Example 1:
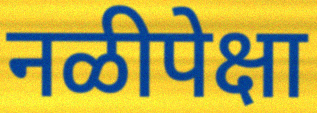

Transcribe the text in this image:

नळीपेक्षा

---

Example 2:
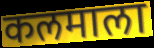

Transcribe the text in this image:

कलमाला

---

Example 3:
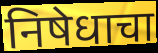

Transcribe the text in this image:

निषेधाचा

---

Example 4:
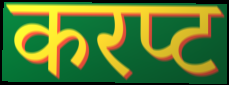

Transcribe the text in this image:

करप्ट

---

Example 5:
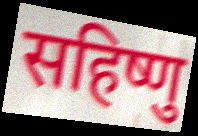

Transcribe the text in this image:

सहिष्णु